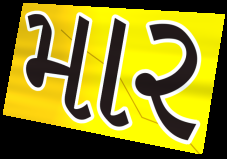
માર